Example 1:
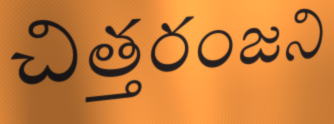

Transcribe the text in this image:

చిత్తరంజని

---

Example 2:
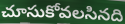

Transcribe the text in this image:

చూసుకోవలసినది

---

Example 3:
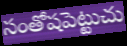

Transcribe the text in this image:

సంతోషపెట్టుచు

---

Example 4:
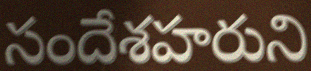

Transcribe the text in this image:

సందేశహరుని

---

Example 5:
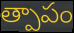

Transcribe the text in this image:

త్పాపం